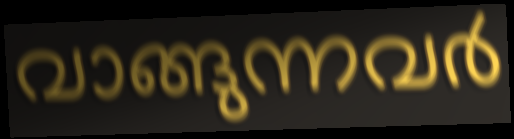
വാങ്ങുന്നവർ